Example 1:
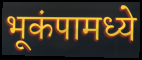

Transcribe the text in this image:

भूकंपामध्ये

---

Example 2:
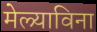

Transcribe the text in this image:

मेल्याविना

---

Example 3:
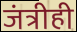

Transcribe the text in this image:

जंत्रीही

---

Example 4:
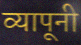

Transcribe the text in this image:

व्यापूनी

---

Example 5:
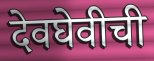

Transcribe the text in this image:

देवघेवीची